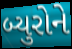
બ્યુરોને